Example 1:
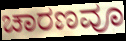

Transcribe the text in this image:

ಚಾರಣವೂ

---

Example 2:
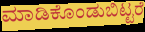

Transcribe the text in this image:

ಮಾಡಿಕೊಂಡುಬಿಟ್ಟರೆ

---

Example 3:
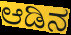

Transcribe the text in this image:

ಆಡಿನ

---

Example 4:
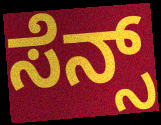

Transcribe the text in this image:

ಸೆನ್ಸ್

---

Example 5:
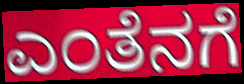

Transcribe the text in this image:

ಎಂತೆನಗೆ